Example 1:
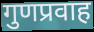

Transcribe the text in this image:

गुणप्रवाह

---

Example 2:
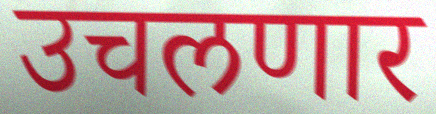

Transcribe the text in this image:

उचलणार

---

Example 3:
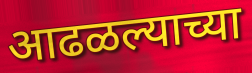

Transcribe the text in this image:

आढळल्याच्या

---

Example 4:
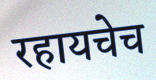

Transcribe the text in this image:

रहायचेच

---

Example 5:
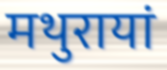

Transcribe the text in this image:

मथुरायां